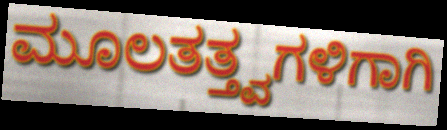
ಮೂಲತತ್ತ್ವಗಳಿಗಾಗಿ